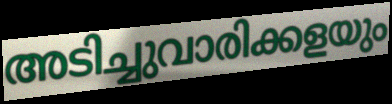
അടിച്ചുവാരിക്കളയും